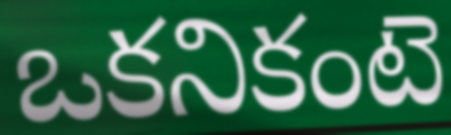
ఒకనికంటె